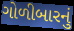
ગોળીબારનું